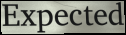
Expected